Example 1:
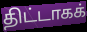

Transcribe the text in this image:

திட்டாகக்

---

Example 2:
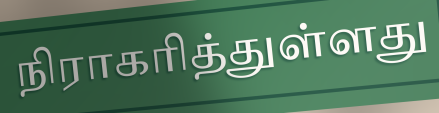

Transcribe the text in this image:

நிராகரித்துள்ளது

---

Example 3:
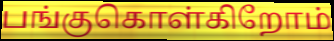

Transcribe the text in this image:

பங்குகொள்கிறோம்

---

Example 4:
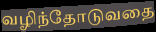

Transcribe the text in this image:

வழிந்தோடுவதை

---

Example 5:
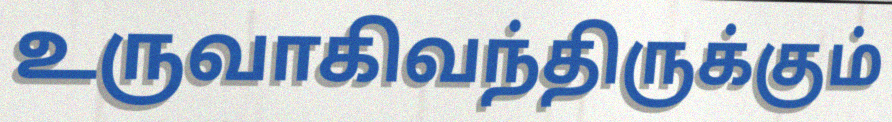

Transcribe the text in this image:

உருவாகிவந்திருக்கும்